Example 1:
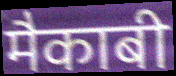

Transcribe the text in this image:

मैकाबी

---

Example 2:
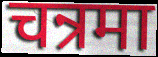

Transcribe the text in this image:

चन्रमा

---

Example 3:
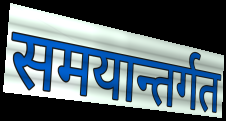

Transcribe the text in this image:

समयान्तर्गत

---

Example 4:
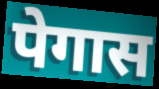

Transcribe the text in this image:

पेगास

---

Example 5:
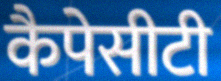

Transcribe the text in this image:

कैपेसीटी